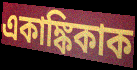
একাঙ্কিকাক